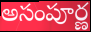
అసంపూర్ణ